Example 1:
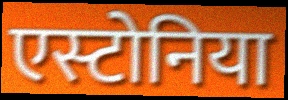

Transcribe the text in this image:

एस्‍टोनिया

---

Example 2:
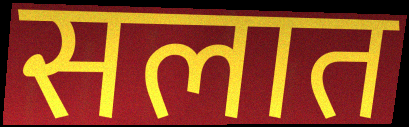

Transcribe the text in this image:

सलात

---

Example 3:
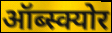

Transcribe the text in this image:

ऑब्स्क्योर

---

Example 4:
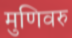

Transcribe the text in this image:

मुणिवरु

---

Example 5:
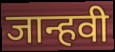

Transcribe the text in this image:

जान्हवी